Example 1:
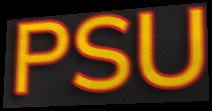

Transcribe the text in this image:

PSU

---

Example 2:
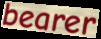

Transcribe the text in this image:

bearer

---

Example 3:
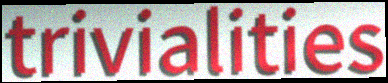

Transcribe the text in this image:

trivialities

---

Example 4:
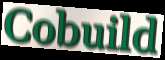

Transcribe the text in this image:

Cobuild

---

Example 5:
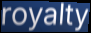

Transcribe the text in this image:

royalty